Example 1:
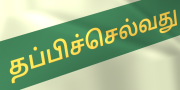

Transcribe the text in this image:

தப்பிச்செல்வது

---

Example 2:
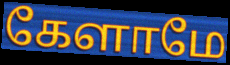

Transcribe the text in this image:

கேளாமே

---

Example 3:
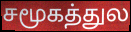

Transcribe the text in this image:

சமூகத்துல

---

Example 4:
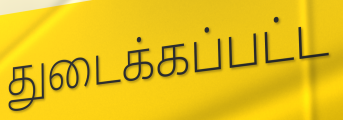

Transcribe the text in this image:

துடைக்கப்பட்ட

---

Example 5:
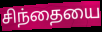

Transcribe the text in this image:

சிந்தையை